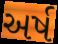
અર્ષ